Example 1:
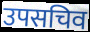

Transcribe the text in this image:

उपसचिव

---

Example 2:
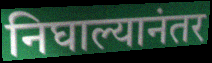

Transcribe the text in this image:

निघाल्यानंतर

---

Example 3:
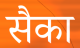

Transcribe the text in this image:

सैका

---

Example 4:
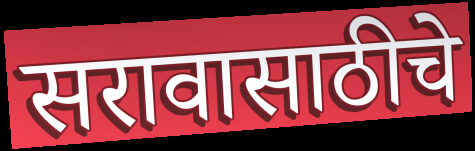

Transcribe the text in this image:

सरावासाठीचे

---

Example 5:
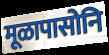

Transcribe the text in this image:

मूळापासोनि